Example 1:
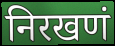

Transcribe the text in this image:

निरखणं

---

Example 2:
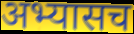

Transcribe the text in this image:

अभ्यासच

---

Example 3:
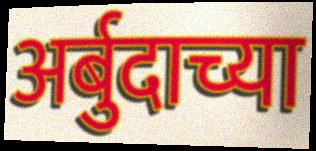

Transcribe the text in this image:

अर्बुदाच्या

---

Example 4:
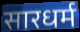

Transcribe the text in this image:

सारधर्म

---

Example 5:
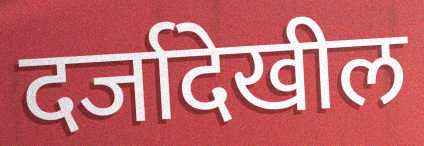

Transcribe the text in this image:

दर्जादेखील